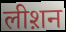
लीश़न